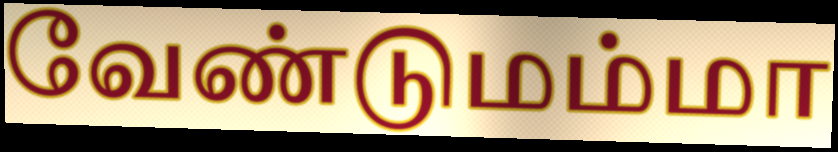
வேண்டுமம்மா